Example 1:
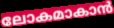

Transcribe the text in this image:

ലോകമാകാൻ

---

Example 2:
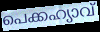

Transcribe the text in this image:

പെക്കഹ്യാവ്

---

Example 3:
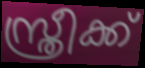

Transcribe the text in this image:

സ്ത്രീക്ക്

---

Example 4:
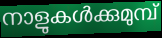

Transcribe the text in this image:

നാളുകൾക്കുമുമ്പ്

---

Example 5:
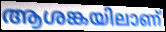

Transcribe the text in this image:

ആശങ്കയിലാണ്